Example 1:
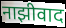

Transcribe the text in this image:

नाझीवाद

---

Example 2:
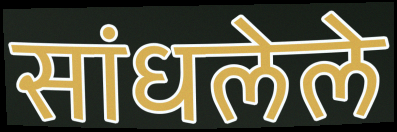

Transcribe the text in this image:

सांधलेले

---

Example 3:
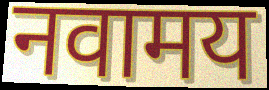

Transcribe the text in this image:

नवामय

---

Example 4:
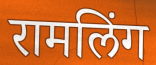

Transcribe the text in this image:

रामलिंग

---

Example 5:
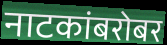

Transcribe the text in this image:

नाटकांबरोबर